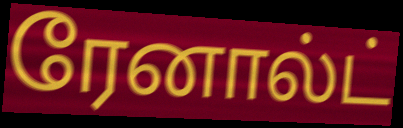
ரேனால்ட்